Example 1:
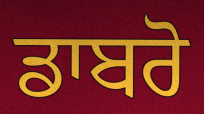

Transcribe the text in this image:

ਡਾਬਰੋ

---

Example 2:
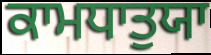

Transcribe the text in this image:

ਕਾਮਧਾਤੁਯਾ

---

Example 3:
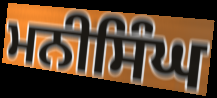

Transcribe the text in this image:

ਮਨੀਸਿੰਘ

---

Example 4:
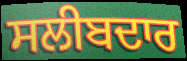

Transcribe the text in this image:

ਸਲੀਬਦਾਰ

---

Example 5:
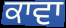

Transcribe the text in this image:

ਕਾਵਾ